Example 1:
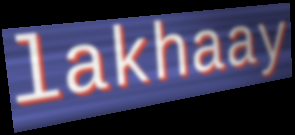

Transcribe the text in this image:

lakhaay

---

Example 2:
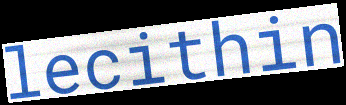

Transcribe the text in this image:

lecithin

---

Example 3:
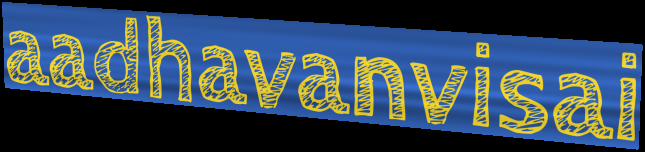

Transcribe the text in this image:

aadhavanvisai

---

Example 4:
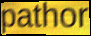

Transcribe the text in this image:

pathor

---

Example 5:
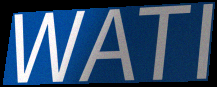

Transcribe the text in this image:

WATI